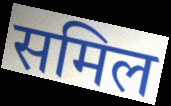
समिल